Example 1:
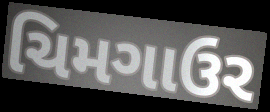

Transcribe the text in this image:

ચિમગાઉર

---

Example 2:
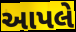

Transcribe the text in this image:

આપલે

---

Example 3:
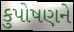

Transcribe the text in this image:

કુપોષણને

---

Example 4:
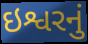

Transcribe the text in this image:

ઇશ્વરનું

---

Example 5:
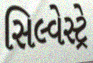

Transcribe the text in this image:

સિલ્વેસ્ટ્રે